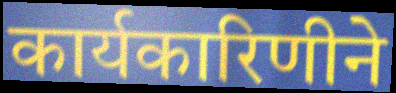
कार्यकारिणीने